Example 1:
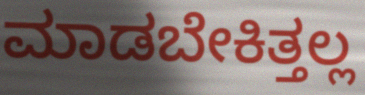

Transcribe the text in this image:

ಮಾಡಬೇಕಿತ್ತಲ್ಲ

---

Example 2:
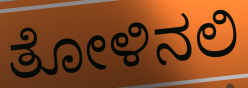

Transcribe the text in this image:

ತೋಳಿನಲಿ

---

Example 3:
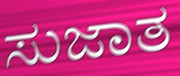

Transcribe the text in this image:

ಸುಜಾತ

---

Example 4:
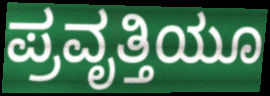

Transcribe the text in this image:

ಪ್ರವೃತ್ತಿಯೂ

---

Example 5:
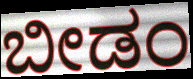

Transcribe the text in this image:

ಬೀಡಂ